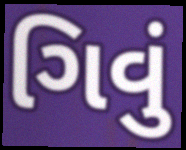
ગિવું